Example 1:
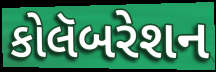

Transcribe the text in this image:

કોલૅબરેશન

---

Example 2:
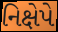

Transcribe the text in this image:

નિક્ષેપે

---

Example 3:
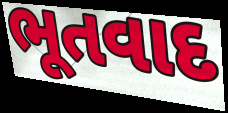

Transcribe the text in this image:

ભૂતવાદ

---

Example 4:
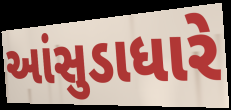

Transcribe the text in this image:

આંસુડાધારે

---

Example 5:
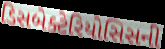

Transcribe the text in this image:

ડિસબેક્ટેરિયોસિસની